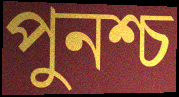
পুনশ্চ